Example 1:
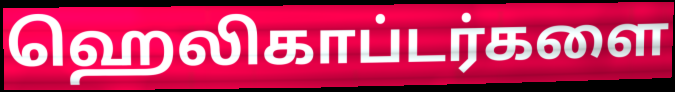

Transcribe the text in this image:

ஹெலிகாப்டர்களை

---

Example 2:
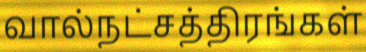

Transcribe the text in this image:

வால்நட்சத்திரங்கள்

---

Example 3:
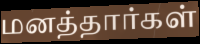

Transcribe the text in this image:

மனத்தார்கள்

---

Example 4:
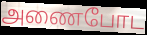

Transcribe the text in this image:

அணைபோட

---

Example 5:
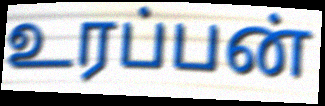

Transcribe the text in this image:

உரப்பன்